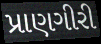
પ્રાણગીરી